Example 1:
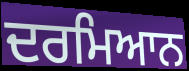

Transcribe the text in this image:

ਦਰਮਿਆਨ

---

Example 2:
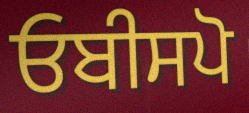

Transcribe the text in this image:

ਓਬੀਸਪੋ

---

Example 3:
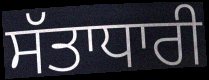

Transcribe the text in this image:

ਸੱਤਾਧਾਰੀ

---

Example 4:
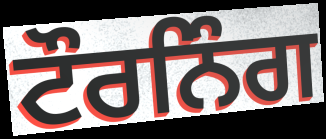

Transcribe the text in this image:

ਟੌਰਨਿੰਗ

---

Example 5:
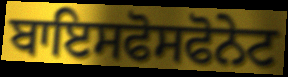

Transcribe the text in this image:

ਬਾਇਸਫੋਸਫੋਨੇਟ